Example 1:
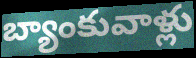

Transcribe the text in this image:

బ్యాంకువాళ్లు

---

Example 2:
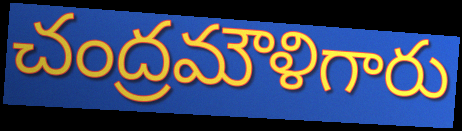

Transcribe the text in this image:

చంద్రమౌళిగారు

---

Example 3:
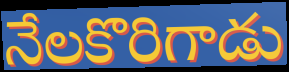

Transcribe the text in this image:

నేలకొరిగాడు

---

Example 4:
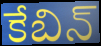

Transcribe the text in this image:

కేబిన్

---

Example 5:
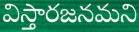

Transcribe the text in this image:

విస్తారజనమని